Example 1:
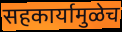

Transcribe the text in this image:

सहकार्यामुळेच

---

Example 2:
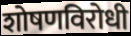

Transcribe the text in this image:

शोषणविरोधी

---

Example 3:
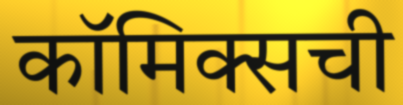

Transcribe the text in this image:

कॉमिक्सची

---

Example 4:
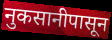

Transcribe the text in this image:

नुकसानीपासून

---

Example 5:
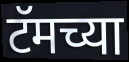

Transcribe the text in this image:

टॅमच्या